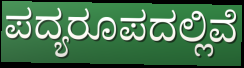
ಪದ್ಯರೂಪದಲ್ಲಿವೆ